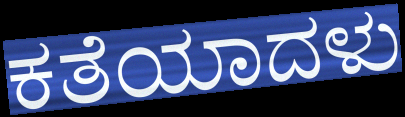
ಕತೆಯಾದಳು